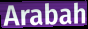
Arabah